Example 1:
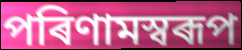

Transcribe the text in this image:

পৰিণামস্বৰূপ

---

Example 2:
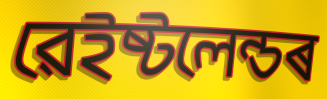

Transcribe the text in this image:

ৱেইষ্টলেন্ডৰ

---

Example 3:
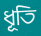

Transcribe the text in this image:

ধূতি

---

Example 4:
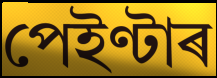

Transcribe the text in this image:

পেইণ্টাৰ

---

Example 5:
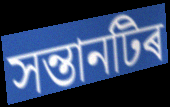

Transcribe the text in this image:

সন্তানটিৰ